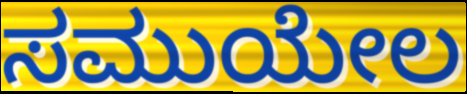
ಸಮುಯೇಲ